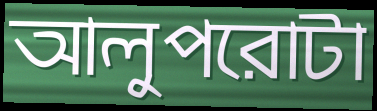
আলুপরোটা